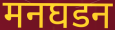
मनघडन